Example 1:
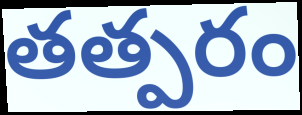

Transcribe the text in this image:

తత్పరం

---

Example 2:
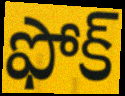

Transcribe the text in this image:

ఫోక్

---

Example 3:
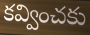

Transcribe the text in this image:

కవ్వించకు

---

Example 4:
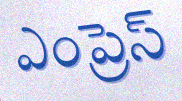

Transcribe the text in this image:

ఎంప్రెస్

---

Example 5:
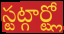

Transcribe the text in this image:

స్టట్గార్ట్లో